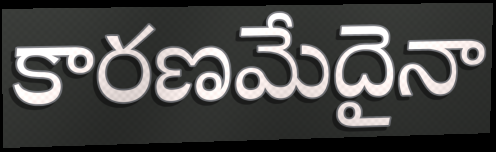
కారణమేదైనా